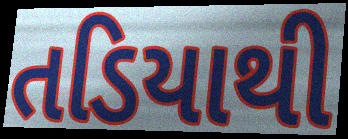
તડિયાથી